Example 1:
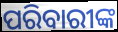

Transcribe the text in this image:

ପରିବାରୀଙ୍କ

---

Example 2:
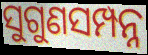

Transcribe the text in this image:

ସୁଗୁଣସମ୍ପନ୍ନ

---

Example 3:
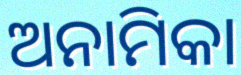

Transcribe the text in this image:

ଅନାମିକା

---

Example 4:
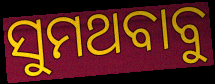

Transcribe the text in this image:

ସୁମଥବାବୁ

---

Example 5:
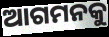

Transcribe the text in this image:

ଆଗମନକୁ